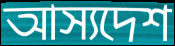
আস্যদেশ